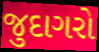
જુદાગરો